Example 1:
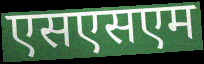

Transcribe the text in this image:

एसएसएम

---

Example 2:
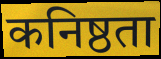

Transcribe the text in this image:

कनिष्ठता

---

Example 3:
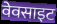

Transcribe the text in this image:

वेवसाइट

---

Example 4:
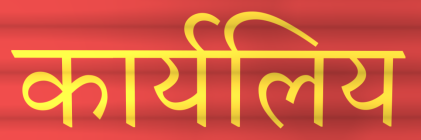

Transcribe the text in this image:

कार्यलिय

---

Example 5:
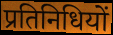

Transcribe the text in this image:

प्रतिनिधियों